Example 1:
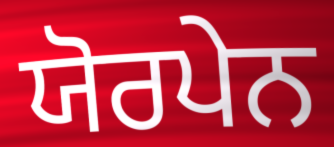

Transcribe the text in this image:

ਯੋਰਪੇਨ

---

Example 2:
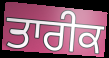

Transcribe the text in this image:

ਤਾਰੀਕ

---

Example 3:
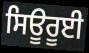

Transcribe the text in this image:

ਸਿਊਰੂਈ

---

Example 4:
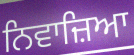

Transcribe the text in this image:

ਨਿਵਾਜ਼ਿਆ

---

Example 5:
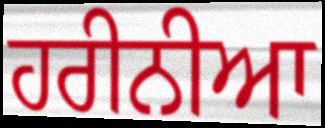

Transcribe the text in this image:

ਹਰੀਨੀਆ